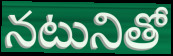
నటునితో